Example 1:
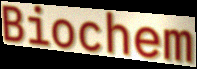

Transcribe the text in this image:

Biochem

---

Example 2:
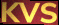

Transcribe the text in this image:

KVS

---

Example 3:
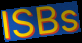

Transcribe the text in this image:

ISBs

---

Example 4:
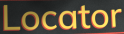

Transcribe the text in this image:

Locator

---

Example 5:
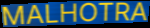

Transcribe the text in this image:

MALHOTRA